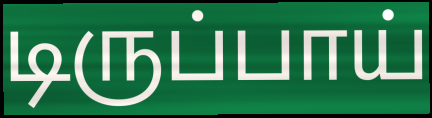
டிருப்பாய்